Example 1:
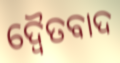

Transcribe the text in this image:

ଦ୍ୱୈତବାଦ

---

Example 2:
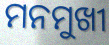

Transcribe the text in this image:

ମନମୁଖୀ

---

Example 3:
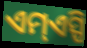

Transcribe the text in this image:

ଏମ୍ଏସ୍ପି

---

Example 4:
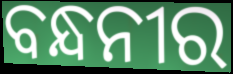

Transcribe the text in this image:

ବନ୍ଧନୀର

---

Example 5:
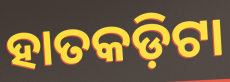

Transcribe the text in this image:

ହାତକଡ଼ିଟା